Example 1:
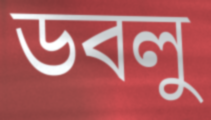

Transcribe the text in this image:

ডবলু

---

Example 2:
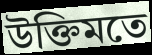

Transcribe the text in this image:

উক্তিমতে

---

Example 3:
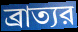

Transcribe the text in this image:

ব্রাত্যর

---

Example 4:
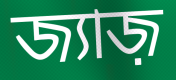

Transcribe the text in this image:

জ্যাজ়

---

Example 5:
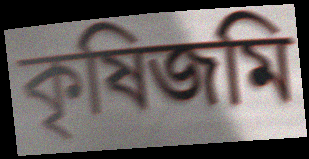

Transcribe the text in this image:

কৃষিজমি